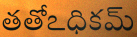
తతోఽధికమ్